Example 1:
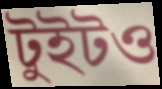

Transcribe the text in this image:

টুইটও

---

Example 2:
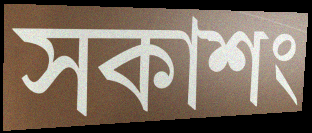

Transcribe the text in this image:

সকাশং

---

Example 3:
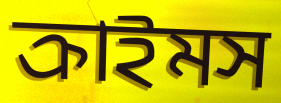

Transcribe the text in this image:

ক্রাইমস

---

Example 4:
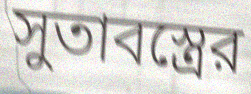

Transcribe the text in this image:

সুতাবস্ত্রের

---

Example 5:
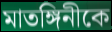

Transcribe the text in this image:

মাতঙ্গিনীকে